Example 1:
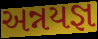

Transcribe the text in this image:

અન્નયજ્ઞ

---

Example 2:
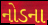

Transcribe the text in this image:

નોડના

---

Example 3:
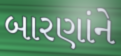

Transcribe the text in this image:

બારણાંને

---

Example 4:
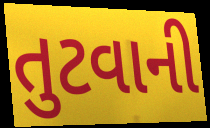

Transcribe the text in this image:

તુટવાની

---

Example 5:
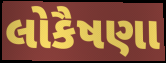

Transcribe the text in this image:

લોકૈષણા